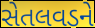
સેતલવડને